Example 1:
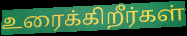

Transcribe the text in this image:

உரைக்கிறீர்கள்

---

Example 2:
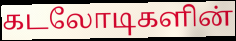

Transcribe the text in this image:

கடலோடிகளின்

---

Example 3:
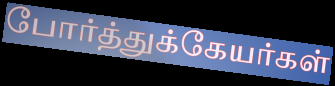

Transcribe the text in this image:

போர்த்துக்கேயர்கள்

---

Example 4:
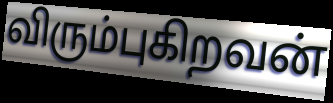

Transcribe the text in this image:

விரும்புகிறவன்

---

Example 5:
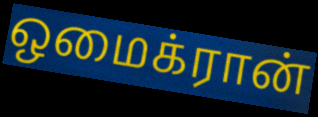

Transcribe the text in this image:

ஒமைக்ரான்